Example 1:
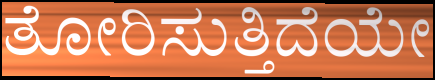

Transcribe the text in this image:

ತೋರಿಸುತ್ತಿದೆಯೇ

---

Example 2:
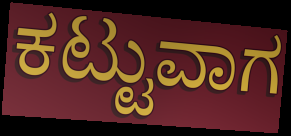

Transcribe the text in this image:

ಕಟ್ಟುವಾಗ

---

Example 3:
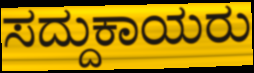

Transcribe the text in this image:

ಸದ್ದುಕಾಯರು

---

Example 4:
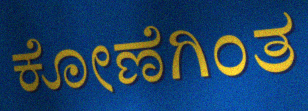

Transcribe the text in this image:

ಕೋಣೆಗಿಂತ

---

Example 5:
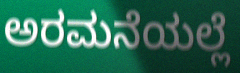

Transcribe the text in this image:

ಅರಮನೆಯಲ್ಲೆ